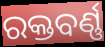
ରକ୍ତବର୍ଣ୍ଣ